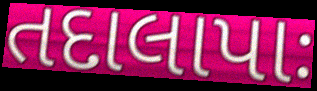
તદાલાપાઃ